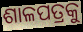
ଶାଳପତ୍ରକୁ